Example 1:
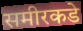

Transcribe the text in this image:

समीरकडे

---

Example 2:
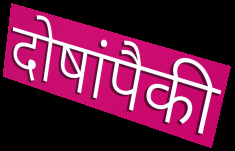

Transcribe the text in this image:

दोषांपैकी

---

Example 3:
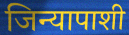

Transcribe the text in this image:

जिन्यापाशी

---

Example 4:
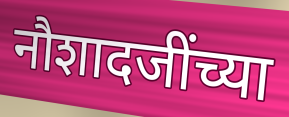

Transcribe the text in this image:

नौशादजींच्या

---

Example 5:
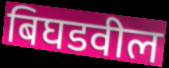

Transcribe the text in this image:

बिघडवील